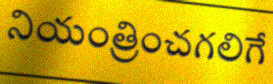
నియంత్రించగలిగే